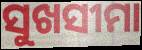
ସୁଖସୀମା